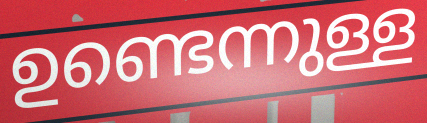
ഉണ്ടെന്നുള്ള